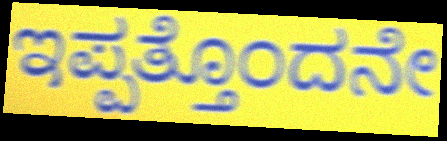
ಇಪ್ಪತ್ತೊಂದನೇ